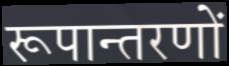
रूपान्तरणों